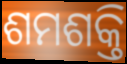
ଶମଶକ୍ତି